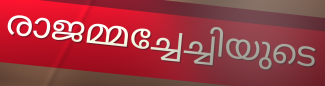
രാജമ്മച്ചേച്ചിയുടെ